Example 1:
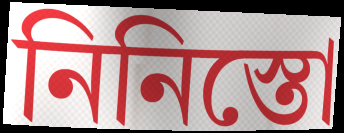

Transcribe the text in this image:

নিনিস্তো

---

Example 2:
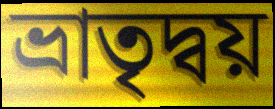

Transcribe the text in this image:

ভ্রাতৃদ্বয়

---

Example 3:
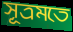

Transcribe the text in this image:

সূত্রমতে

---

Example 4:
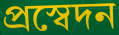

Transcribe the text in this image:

প্রস্বেদন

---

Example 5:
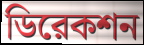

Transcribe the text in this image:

ডিরেকশন